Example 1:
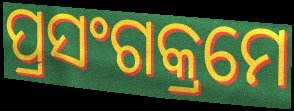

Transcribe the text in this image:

ପ୍ରସଂଗକ୍ରମେ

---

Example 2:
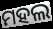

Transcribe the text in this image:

ମହଲ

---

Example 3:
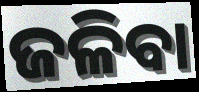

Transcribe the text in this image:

ଜଳିବା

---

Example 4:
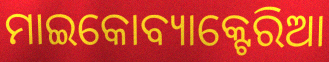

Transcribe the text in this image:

ମାଇକୋବ୍ୟାକ୍ଟେରିଆ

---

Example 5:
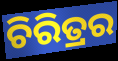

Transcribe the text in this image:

ଚିରିତ୍ରର